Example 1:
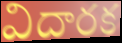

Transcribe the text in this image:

విదారక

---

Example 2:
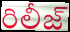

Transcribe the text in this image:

రిలీజ్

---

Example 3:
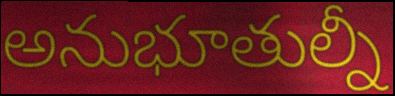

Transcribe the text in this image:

అనుభూతుల్నీ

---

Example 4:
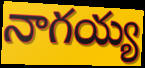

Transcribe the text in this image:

నాగయ్య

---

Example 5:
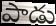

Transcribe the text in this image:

పాడు